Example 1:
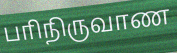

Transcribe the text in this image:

பரிநிருவாண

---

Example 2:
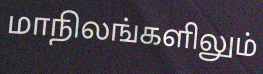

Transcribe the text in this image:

மாநிலங்களிலும்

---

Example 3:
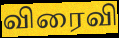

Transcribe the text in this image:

விரைவி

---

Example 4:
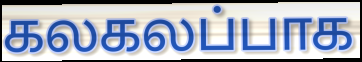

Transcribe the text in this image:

கலகலப்பாக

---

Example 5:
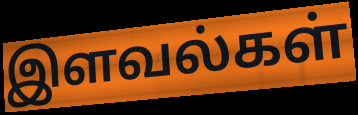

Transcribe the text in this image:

இளவல்கள்